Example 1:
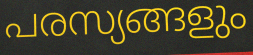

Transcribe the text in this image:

പരസ്യങ്ങളും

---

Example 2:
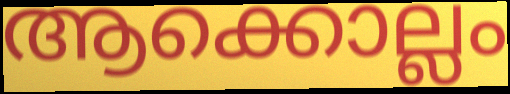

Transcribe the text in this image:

ആക്കൊല്ലം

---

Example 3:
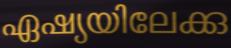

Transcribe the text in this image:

ഏഷ്യയിലേക്കു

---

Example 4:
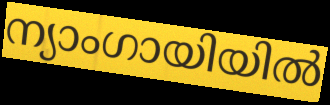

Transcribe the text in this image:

ന്യാംഗായിയിൽ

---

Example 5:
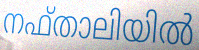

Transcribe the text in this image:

നഫ്താലിയിൽ